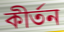
কীৰ্তন